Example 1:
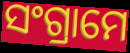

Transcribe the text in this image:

ସଂଗ୍ରାମେ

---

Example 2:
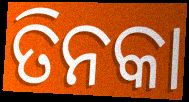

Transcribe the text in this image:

ତିନକା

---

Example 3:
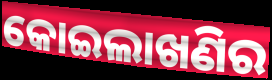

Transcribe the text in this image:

କୋଇଲାଖଣିର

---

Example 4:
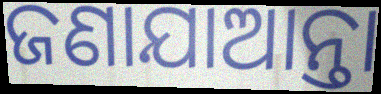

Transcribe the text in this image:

ଜଣାଯାଆନ୍ତା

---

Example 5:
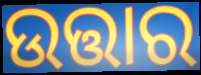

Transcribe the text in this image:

ଉତ୍ତାର